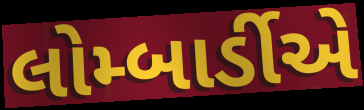
લોમ્બાર્ડીએ